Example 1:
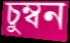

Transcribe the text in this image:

চুম্বন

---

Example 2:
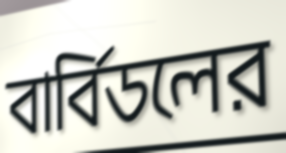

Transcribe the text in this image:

বার্বিডলের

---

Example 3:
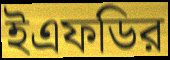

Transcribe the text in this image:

ইএফডির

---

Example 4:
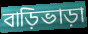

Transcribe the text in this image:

বাড়িভাড়া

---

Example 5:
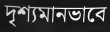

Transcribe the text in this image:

দৃশ্যমানভাবে